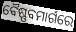
ବୈଷ୍ଣବମାର୍ଗରେ